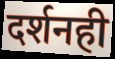
दर्शनही